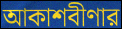
আকাশবীণার